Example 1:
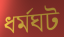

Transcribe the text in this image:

ধর্মঘট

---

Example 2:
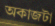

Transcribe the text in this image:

অকাজটা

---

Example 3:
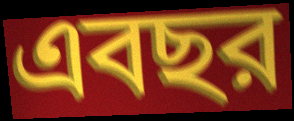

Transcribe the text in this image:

এবছর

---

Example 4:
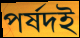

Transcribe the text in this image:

পর্ষদই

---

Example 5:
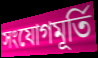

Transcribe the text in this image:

সংযোগমূর্তি